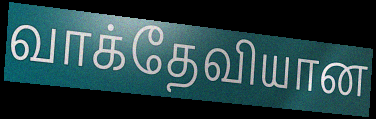
வாக்தேவியான